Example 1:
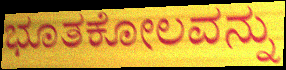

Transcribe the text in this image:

ಭೂತಕೋಲವನ್ನು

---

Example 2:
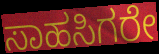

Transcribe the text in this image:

ಸಾಹಸಿಗರೇ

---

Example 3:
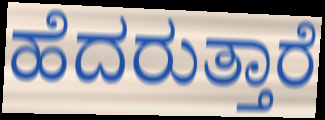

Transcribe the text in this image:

ಹೆದರುತ್ತಾರೆ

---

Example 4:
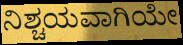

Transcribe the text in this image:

ನಿಶ್ಚಯವಾಗಿಯೇ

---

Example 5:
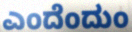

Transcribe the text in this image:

ಎಂದೆಂದುಂ